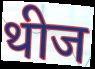
थीज